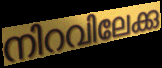
നിറവിലേക്കു